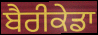
ਬੈਰੀਕੇਡਾ